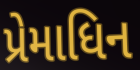
પ્રેમાધિન